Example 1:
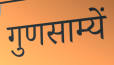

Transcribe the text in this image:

गुणसाम्यें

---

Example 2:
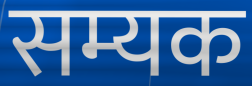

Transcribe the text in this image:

सम्‍यक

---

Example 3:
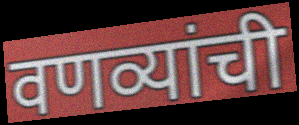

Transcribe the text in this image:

वणव्यांची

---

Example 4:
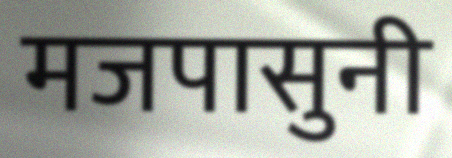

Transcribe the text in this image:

मजपासुनी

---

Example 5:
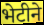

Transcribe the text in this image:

भेटीने